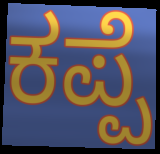
ಕಪ್ಪೆ